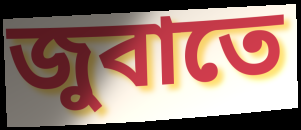
জুবাতে